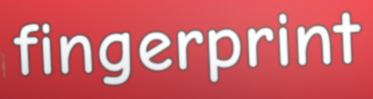
fingerprint